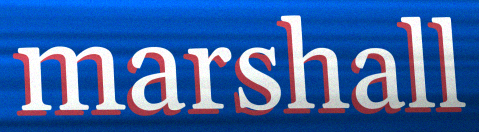
marshall